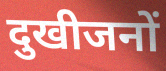
दुखीजनों